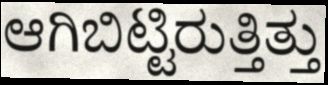
ಆಗಿಬಿಟ್ಟಿರುತ್ತಿತ್ತು